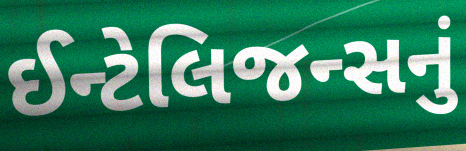
ઈન્ટેલિજન્સનું